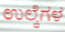
ಉಲ್ಕೆಗಳ